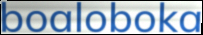
boaloboka